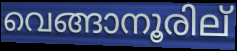
വെങ്ങാനൂരില്